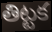
తిట్టక